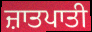
ਜ਼ਾਤਪਾਤੀ